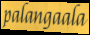
palangaala